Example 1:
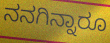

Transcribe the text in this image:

ನನಗಿನ್ನಾರೂ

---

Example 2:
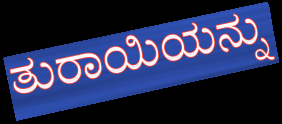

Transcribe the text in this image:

ತುರಾಯಿಯನ್ನು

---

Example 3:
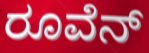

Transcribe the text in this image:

ರೂವೆನ್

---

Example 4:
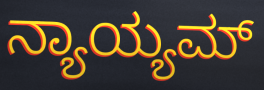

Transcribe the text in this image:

ನ್ಯಾಯ್ಯಮ್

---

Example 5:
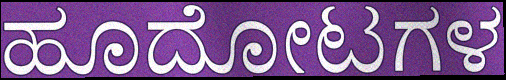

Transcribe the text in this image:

ಹೂದೋಟಗಳ